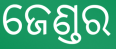
ଜେଣ୍ଡର